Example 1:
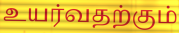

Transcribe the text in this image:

உயர்வதற்கும்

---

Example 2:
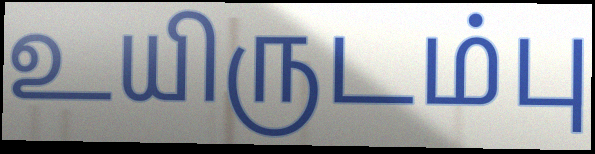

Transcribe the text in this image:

உயிருடம்பு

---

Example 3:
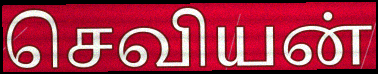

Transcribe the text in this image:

செவியன்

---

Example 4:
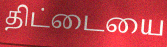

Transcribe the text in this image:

திட்டையை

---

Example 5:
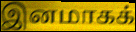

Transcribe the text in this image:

இனமாகக்